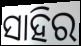
ସାହିର